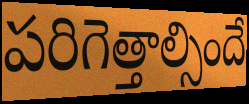
పరిగెత్తాల్సిందే